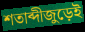
শতাব্দীজুড়েই